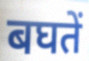
बघतें